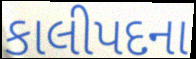
કાલીપદના